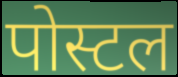
पोस्टल